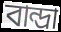
বান্দ্রা